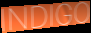
INDIGO